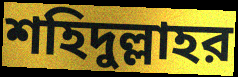
শহিদুল্লাহর